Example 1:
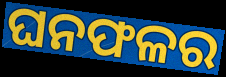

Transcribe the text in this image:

ଘନଫଳର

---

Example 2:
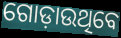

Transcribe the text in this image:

ଗୋଡ଼ାଉଥିବେ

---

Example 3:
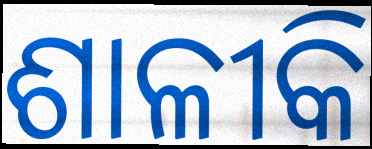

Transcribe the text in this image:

ଶାଳୀକି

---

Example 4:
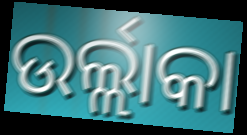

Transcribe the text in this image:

ଉର୍ଲ୍ଲାକା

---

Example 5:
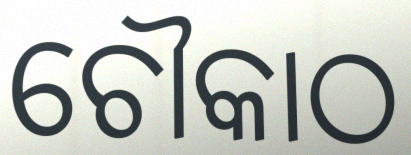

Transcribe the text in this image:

ଚୌକାଠ